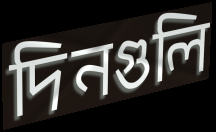
দিনগুলি